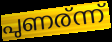
പുണര്ന്ന്